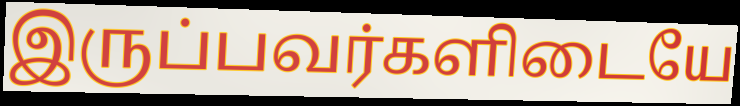
இருப்பவர்களிடையே